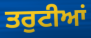
ਤਰੁਟੀਆਂ